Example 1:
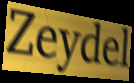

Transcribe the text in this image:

Zeydel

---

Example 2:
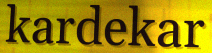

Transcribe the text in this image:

kardekar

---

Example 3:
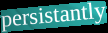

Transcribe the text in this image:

persistantly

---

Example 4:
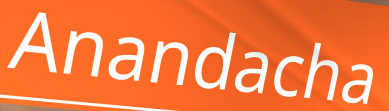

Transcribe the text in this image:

Anandacha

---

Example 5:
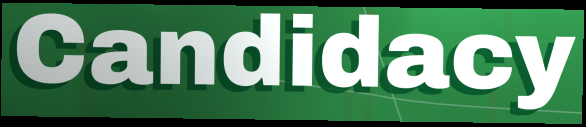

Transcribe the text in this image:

Candidacy